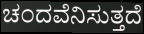
ಚಂದವೆನಿಸುತ್ತದೆ